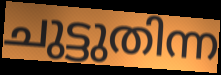
ചുട്ടുതിന്ന